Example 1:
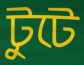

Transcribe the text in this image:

টুটে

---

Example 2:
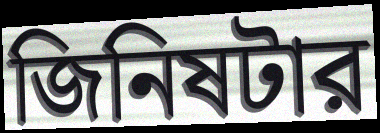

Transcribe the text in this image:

জিনিষটার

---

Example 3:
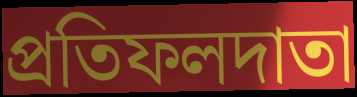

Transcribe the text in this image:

প্রতিফলদাতা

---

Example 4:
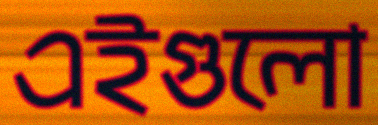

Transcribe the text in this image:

এইগুলো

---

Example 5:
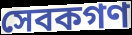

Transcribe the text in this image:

সেবকগণ